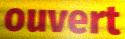
ouvert